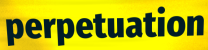
perpetuation